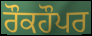
ਰੌਕਹੌਪਰ